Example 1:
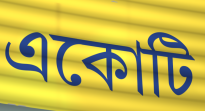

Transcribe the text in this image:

একোটি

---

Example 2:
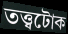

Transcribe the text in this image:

তত্ত্বটোক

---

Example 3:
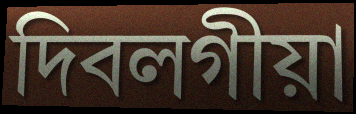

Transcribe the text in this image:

দিবলগীয়া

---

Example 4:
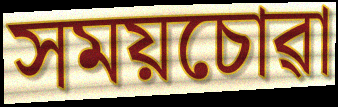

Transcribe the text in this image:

সময়চোৱা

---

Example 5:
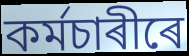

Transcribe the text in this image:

কৰ্মচাৰীৰে